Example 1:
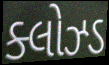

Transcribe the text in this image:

ક્લોઝ્ડ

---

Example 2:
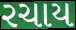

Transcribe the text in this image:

રચાય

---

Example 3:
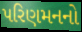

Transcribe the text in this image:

પરિણમનનો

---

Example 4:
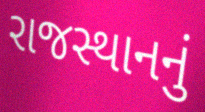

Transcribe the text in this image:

રાજસ્થાનનું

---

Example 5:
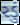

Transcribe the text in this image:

રડું